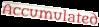
Accumulated